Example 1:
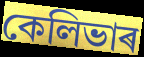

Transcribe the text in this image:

কেলিভাৰ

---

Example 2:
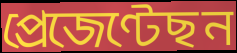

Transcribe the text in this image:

প্ৰেজেণ্টেছন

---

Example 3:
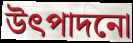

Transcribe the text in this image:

উৎপাদনো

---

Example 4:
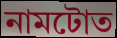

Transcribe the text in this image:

নামটোত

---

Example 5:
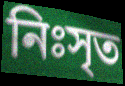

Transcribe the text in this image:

নিঃসৃত